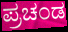
ಪ್ರಚಂಡ